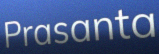
Prasanta